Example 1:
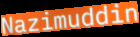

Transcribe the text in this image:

Nazimuddin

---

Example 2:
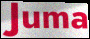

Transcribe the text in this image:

Juma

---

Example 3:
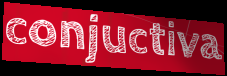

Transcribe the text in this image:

conjuctiva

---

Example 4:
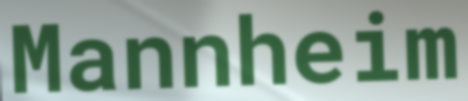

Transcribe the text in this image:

Mannheim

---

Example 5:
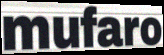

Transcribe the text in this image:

mufaro